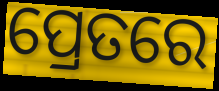
ପ୍ରେତରେ